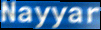
Nayyar